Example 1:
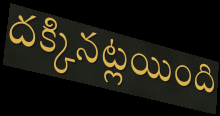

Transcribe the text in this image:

దక్కినట్లయింది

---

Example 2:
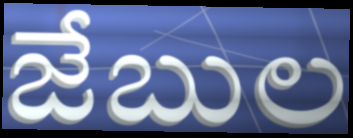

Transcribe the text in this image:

జేబుల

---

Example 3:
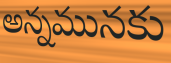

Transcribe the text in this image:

అన్నమునకు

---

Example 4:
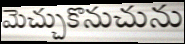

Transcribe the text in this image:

మెచ్చుకొనుచును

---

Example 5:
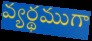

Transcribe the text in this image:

వ్యర్థముగా